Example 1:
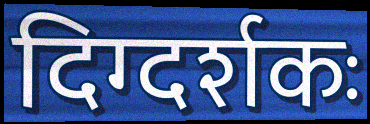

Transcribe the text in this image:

दिग्दर्शकः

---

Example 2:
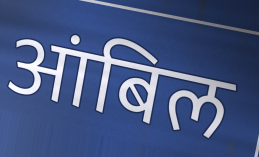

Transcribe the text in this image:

आंबिल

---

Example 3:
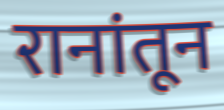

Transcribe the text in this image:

रानांतून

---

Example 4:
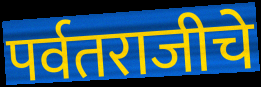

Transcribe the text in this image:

पर्वतराजीचे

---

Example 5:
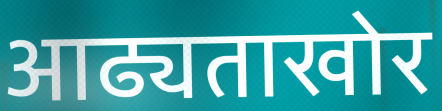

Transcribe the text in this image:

आढ्यताखोर